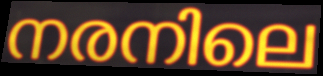
നരനിലെ